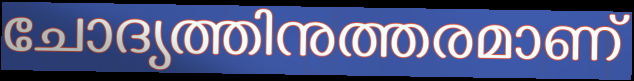
ചോദ്യത്തിനുത്തരമാണ്